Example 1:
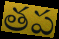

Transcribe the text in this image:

తప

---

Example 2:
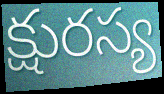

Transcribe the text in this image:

క్షురస్య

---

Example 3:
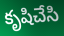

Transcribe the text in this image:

కృషిచేసి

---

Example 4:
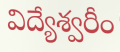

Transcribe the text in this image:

విద్యేశ్వరీం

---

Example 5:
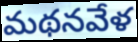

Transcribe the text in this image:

మథనవేళ